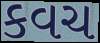
કવચ